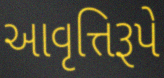
આવૃત્તિરૂપે